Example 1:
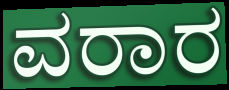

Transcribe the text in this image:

ವರಾರ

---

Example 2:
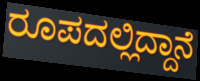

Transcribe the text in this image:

ರೂಪದಲ್ಲಿದ್ದಾನೆ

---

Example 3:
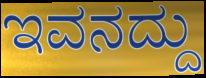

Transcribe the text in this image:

ಇವನದ್ದು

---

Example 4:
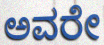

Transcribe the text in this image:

ಅವರೇ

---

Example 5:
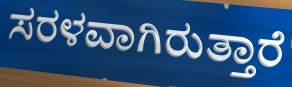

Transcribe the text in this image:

ಸರಳವಾಗಿರುತ್ತಾರೆ